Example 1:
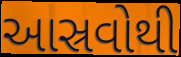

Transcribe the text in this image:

આસ્રવોથી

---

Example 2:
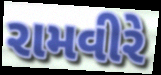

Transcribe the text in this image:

રામવીરે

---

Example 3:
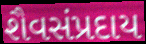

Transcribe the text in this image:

શૈવસંપ્રદાય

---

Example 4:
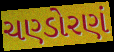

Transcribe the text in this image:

ચણ્ડોરણં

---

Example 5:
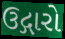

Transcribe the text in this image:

ઉદ્ગારો